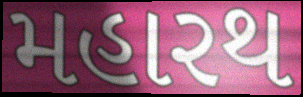
મહારથ